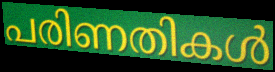
പരിണതികൾ